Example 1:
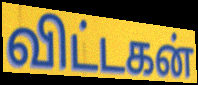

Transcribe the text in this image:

விட்டகன்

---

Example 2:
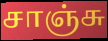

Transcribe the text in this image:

சாஞ்சு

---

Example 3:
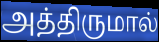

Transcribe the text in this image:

அத்திருமால்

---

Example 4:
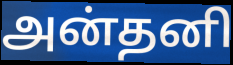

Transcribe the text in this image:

அன்தனி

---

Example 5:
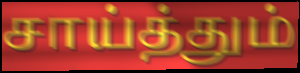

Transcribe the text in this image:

சாய்த்தும்